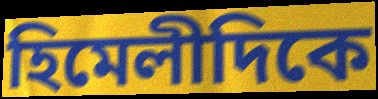
হিমেলীদিকে